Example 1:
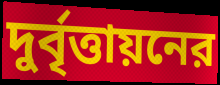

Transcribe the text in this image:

দুর্বৃত্তায়নের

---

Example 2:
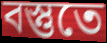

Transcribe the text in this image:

বস্তুতে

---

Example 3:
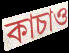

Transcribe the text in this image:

কাচাও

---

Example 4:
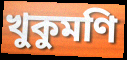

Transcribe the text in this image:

খুকুমণি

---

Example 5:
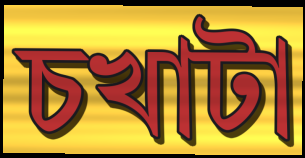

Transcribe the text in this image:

চখাটা